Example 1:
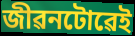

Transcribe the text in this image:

জীৱনটোৱেই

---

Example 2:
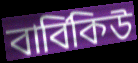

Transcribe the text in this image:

বাৰ্বিকিউ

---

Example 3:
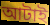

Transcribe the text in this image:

আটাই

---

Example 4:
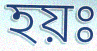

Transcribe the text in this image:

হয়ঃ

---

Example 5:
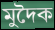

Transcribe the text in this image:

মুদৈক